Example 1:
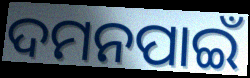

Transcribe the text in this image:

ଦମନପାଇଁ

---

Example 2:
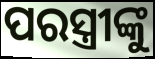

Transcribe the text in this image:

ପରସ୍ତ୍ରୀଙ୍କୁ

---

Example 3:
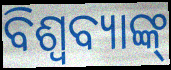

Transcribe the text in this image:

ବିଶ୍ଵବ୍ୟାଙ୍କ୍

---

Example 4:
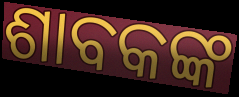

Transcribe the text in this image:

ଶାବକଙ୍କ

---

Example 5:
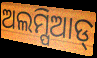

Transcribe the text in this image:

ଅଲମ୍ପିଆଡ୍